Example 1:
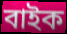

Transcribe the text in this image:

বাইক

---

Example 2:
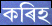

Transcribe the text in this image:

কৰিহ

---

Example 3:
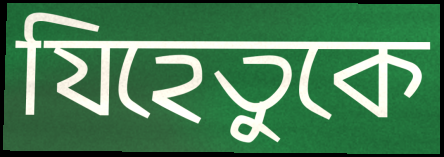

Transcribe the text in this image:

যিহেতুকে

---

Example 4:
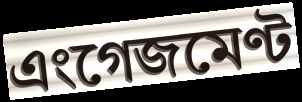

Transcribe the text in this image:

এংগেজমেণ্ট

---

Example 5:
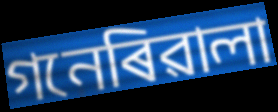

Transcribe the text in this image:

গনেৰিৱালা